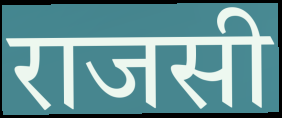
राजसी